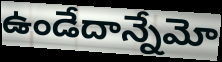
ఉండేదాన్నేమో